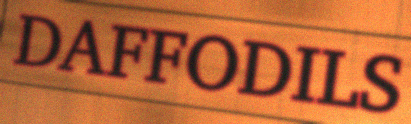
DAFFODILS